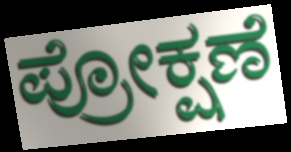
ಪ್ರೋಕ್ಷಣೆ